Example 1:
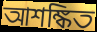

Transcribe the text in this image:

আশঙ্কিত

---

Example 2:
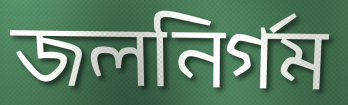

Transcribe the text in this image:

জলনির্গম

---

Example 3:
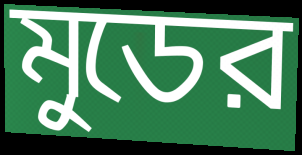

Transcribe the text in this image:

মুডের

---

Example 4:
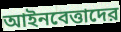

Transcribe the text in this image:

আইনবেত্তাদের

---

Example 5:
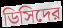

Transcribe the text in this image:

ডিসিদের